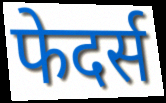
फेदर्स